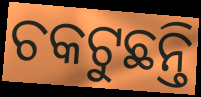
ଚକଟୁଛନ୍ତି